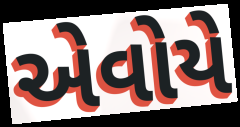
એવોયે